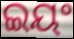
ଇୟଂ